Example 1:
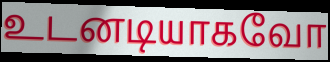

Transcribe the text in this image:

உடனடியாகவோ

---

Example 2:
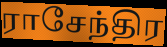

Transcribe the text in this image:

ராசேந்திர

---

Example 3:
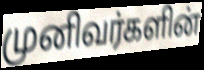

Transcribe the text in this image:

முனிவர்களின்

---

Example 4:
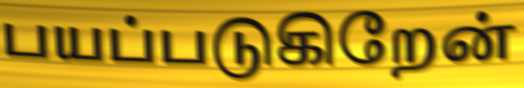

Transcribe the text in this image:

பயப்படுகிறேன்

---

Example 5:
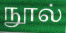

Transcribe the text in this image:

நூல்